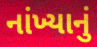
નાંખ્યાનું